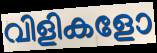
വിളികളോ